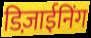
डिज़ाईनिंग